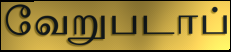
வேறுபடாப்